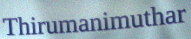
Thirumanimuthar